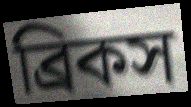
ব্রিকস